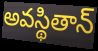
అవస్థితాన్